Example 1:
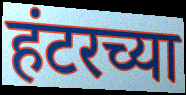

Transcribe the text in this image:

हंटरच्या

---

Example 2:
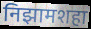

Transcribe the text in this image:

निझामशहा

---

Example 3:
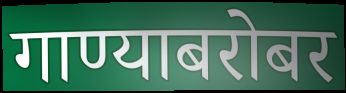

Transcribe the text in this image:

गाण्याबरोबर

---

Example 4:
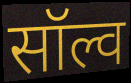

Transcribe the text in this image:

सॉल्व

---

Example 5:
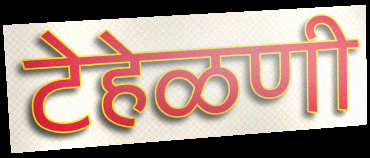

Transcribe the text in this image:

टेहेळणी